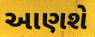
આણશે